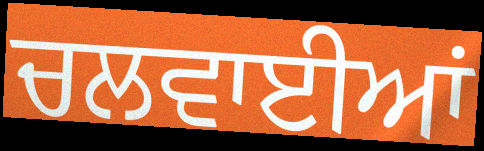
ਚਲਵਾਈਆਂ